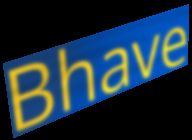
Bhave